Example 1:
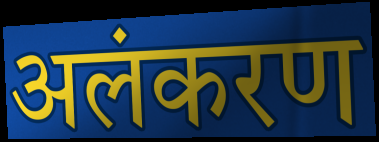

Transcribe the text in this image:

अलंकरण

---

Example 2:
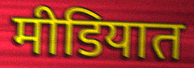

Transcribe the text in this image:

मीडियात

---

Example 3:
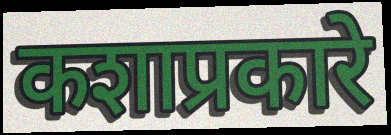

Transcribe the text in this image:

कशाप्रकारे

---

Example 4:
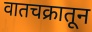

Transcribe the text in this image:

वातचक्रातून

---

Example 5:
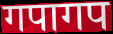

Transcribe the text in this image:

गपागप